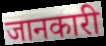
जानकारी